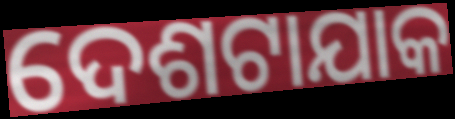
ଦେଶଟାଯାକ